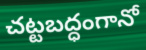
చట్టబద్ధంగానో